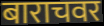
बाराचवर